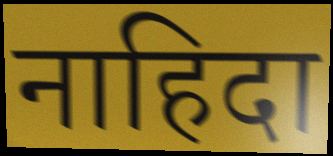
नाहिदा